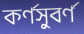
কর্ণসুবর্ণ